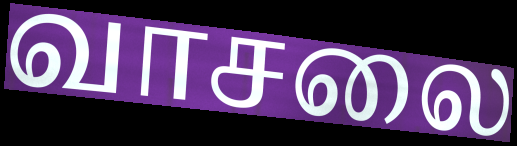
வாசலை